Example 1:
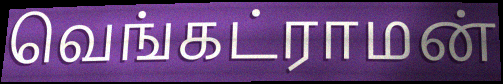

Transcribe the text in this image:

வெங்கட்ராமன்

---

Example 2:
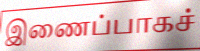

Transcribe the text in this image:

இணைப்பாகச்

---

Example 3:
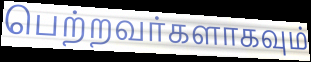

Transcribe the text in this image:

பெற்றவர்களாகவும்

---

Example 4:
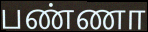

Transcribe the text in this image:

பண்ணா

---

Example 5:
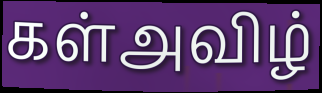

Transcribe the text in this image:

கள்அவிழ்